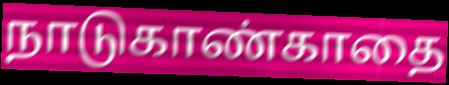
நாடுகாண்காதை